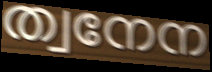
ത്വനേന